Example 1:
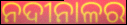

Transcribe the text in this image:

ନଦୀନାଳର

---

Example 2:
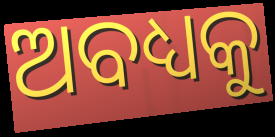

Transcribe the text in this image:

ଅବଧ୍ୟକୁ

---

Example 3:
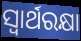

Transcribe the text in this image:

ସ୍ଵାର୍ଥରକ୍ଷା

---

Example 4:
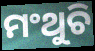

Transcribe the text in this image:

ମଂଥୁଚି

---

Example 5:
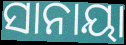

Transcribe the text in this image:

ସାନାୟା